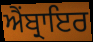
ਐਂਬ੍ਰਾਇਰ